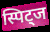
स्पिट्ज